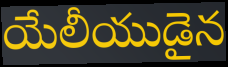
యేలీయుడైన